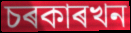
চৰকাৰখন